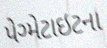
પેગ્મેટાઇટના